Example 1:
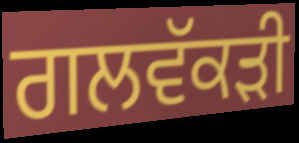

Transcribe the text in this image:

ਗਲਵੱਕਡ਼ੀ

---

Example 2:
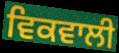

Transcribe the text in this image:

ਵਿਕਵਾਲੀ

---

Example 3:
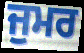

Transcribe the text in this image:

ਜੁਮਰ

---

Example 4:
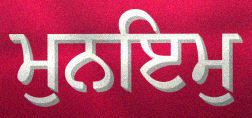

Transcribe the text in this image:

ਮੁਨਇਮੁ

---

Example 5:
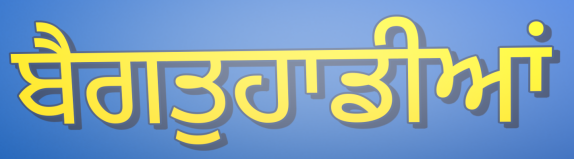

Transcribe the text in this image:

ਬੈਗਤੁਹਾਡੀਆਂ